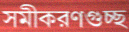
সমীকরণগুচ্ছ